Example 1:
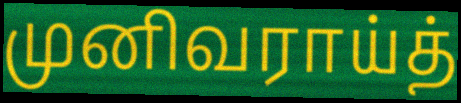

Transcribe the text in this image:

முனிவராய்த்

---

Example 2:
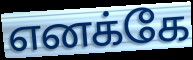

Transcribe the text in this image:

எனக்கே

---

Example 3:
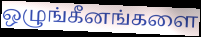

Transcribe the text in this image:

ஒழுங்கீனங்களை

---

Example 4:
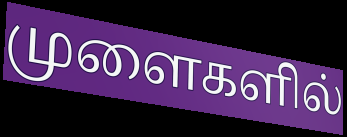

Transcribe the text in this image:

முளைகளில்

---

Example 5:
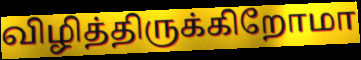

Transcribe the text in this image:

விழித்திருக்கிறோமா